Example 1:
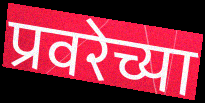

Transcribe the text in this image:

प्रवरेच्या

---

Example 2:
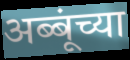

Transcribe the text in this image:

अब्बूंच्या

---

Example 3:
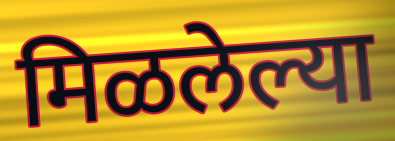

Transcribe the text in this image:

मिळलेल्या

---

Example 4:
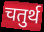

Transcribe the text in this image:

चतुर्थ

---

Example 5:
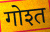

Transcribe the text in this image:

गोश्त